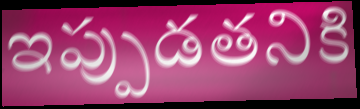
ఇప్పుడతనికి